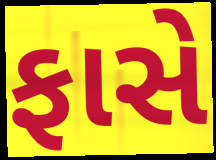
ફાસે